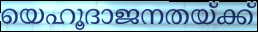
യെഹൂദാജനതയ്ക്ക്